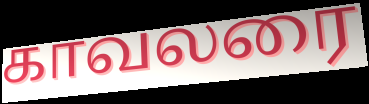
காவலரை